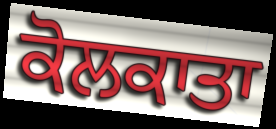
ਕੋਲਕਾਤਾ